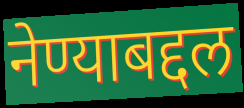
नेण्याबद्दल